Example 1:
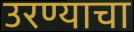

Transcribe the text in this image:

उरण्याचा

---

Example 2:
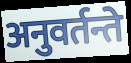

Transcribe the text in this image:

अनुवर्तन्ते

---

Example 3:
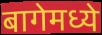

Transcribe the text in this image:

बागेमध्ये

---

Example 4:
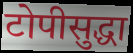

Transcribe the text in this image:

टोपीसुद्धा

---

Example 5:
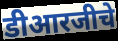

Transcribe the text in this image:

डीआरजीचे